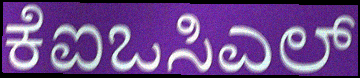
ಕೆಐಒಸಿಎಲ್